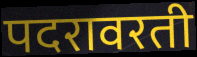
पदरावरती